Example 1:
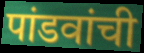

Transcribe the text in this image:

पांडवांची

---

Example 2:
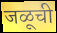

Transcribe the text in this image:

जळूची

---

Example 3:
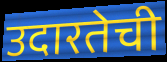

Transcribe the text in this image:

उदारतेची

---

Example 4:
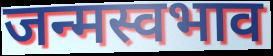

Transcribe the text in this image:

जन्मस्वभाव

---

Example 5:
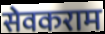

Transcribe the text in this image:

सेवकराम